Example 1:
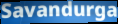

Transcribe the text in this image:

Savandurga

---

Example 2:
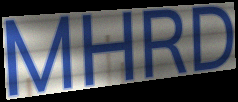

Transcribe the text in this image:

MHRD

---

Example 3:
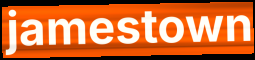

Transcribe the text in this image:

jamestown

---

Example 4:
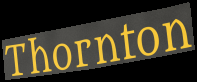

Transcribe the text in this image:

Thornton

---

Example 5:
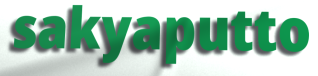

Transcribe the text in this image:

sakyaputto